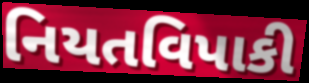
નિયતવિપાકી